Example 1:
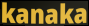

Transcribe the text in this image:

kanaka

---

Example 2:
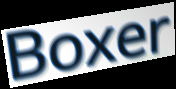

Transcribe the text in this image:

Boxer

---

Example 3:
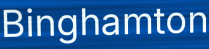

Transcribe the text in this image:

Binghamton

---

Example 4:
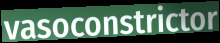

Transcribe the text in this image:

vasoconstrictor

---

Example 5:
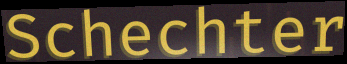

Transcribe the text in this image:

Schechter